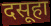
दसूहा